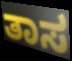
ತಾಸ